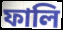
ফালি